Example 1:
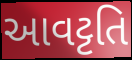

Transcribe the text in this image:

આવટ્ટતિ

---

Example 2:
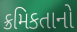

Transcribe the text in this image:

ક્રમિકતાનો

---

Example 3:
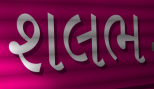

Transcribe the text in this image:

શલભ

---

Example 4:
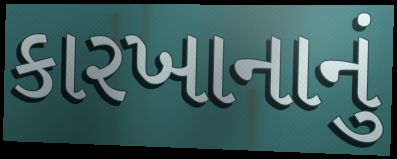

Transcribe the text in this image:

કારખાનાનું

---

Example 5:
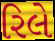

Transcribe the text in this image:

રિલે